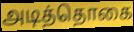
அடித்தொகை